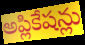
అప్లికేషన్లు